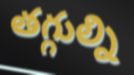
తగ్గుల్ని